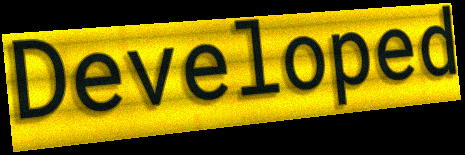
Developed